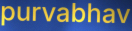
purvabhav